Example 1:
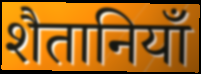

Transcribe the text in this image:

शैतानियाँ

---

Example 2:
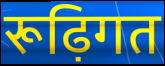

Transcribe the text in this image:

रूढ़िगत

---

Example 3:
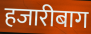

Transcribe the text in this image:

हजारीबाग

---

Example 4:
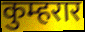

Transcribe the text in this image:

कुम्हरार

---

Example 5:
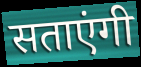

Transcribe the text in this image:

सताएंगी